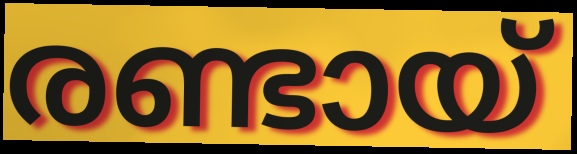
രണ്ടായ്